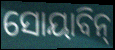
ସୋୟାବିନ୍